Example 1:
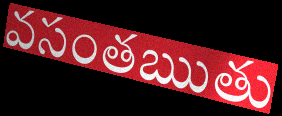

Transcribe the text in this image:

వసంతఋతు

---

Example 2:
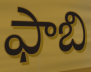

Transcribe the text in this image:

ఫాబి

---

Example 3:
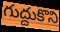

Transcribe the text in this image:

గుద్దుకొని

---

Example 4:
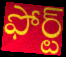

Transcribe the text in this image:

ఫోర్ట్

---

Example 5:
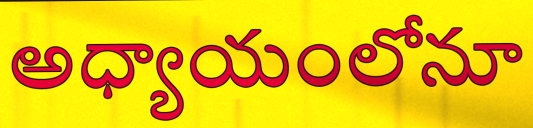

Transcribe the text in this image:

అధ్యాయంలోనూ